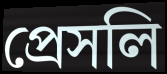
প্রেসলি